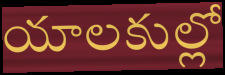
యాలకుల్లో